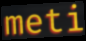
meti